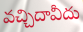
వచ్చిదావీదు